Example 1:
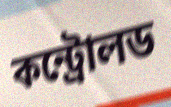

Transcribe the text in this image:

কন্ট্রোলড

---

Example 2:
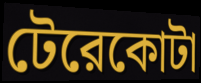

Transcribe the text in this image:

টেরেকোটা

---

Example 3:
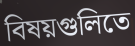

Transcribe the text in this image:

বিষয়গুলিতে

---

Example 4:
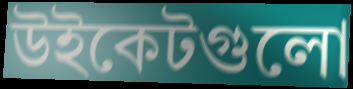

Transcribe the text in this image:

উইকেটগুলো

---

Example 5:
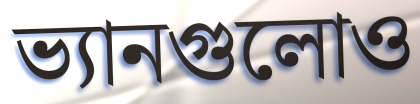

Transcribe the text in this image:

ভ্যানগুলোও